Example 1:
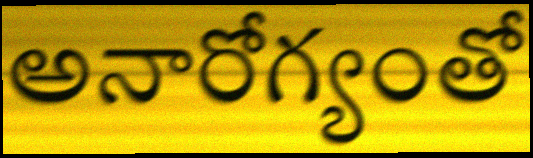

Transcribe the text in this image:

అనారోగ్యంతో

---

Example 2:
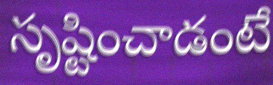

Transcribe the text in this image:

సృష్టించాడంటే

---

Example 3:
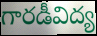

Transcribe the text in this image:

గారడీవిద్య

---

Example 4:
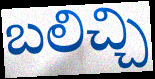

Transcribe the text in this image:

బలిచ్చి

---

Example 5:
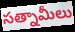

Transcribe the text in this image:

సత్నామీలు